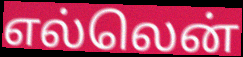
எல்லென்